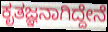
ಕೃತಜ್ಞನಾಗಿದ್ದೇನೆ